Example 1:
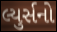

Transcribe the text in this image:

લ્યુર્સનો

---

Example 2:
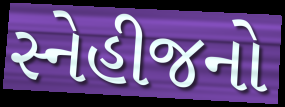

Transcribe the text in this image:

સ્નેહીજનો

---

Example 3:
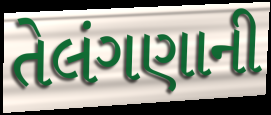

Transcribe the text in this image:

તેલંગણાની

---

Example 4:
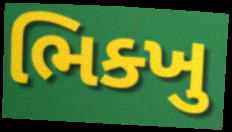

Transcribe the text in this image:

ભિક્ખુ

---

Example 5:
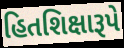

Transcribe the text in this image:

હિતશિક્ષારૂપે